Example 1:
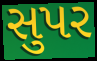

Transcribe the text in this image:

સુપર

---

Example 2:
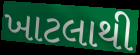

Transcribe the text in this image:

ખાટલાથી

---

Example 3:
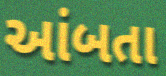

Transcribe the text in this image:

આંબતા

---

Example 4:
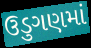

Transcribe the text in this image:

ઉડુગણમાં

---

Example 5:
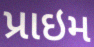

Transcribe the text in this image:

પ્રાઇમ